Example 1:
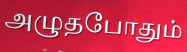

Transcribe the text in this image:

அழுதபோதும்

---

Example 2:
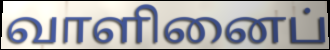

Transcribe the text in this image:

வாளினைப்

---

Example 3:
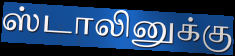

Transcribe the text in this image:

ஸ்டாலினுக்கு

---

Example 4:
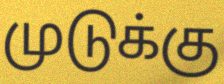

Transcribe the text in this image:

முடுக்கு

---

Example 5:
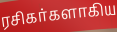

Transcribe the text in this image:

ரசிகர்களாகிய